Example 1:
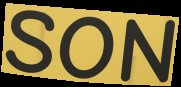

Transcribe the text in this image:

SON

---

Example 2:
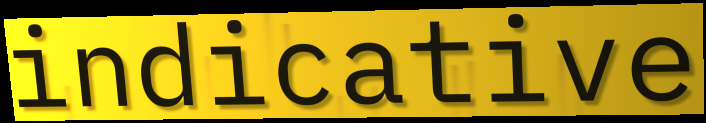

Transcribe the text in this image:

indicative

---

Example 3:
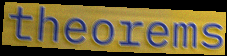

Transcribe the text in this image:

theorems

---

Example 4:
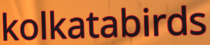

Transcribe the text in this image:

kolkatabirds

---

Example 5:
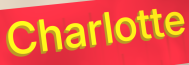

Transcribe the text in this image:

Charlotte